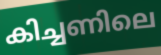
കിച്ചണിലെ